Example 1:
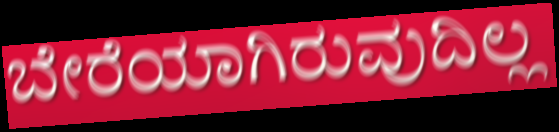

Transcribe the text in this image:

ಬೇರೆಯಾಗಿರುವುದಿಲ್ಲ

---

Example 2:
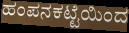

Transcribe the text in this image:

ಹಂಪನಕಟ್ಟೆಯಿಂದ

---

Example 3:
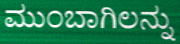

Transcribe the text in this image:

ಮುಂಬಾಗಿಲನ್ನು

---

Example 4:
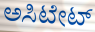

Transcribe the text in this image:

ಅಸಿಟೇಟ್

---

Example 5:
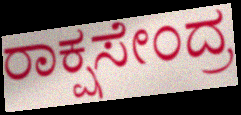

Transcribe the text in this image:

ರಾಕ್ಷಸೇಂದ್ರ